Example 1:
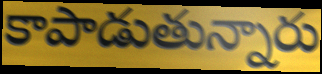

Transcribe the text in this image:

కాపాడుతున్నారు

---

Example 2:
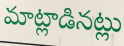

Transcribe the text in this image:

మాట్లాడినట్లు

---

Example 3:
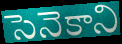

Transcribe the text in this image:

సెనెకాని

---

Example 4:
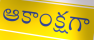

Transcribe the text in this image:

ఆకాంక్షగా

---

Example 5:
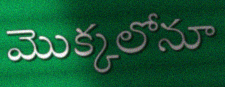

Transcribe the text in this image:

మొక్కలోనూ